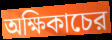
অক্ষিকাচের